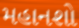
મહાનશો